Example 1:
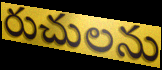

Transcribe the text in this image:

రుచులను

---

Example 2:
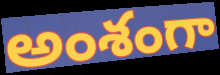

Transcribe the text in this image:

అంశంగా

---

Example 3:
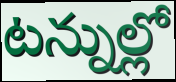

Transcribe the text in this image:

టన్నుల్లో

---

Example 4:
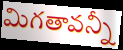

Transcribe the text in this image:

మిగతావన్నీ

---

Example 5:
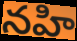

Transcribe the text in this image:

నహి